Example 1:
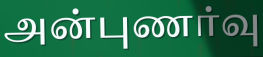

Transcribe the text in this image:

அன்புணர்வு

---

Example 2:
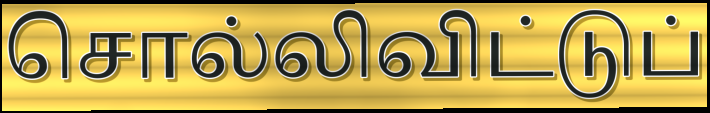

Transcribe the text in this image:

சொல்லிவிட்டுப்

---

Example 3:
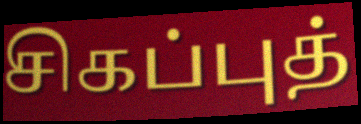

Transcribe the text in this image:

சிகப்புத்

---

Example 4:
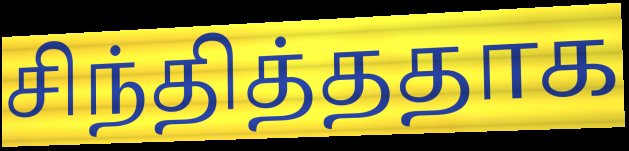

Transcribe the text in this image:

சிந்தித்ததாக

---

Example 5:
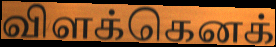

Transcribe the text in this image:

விளக்கெனக்